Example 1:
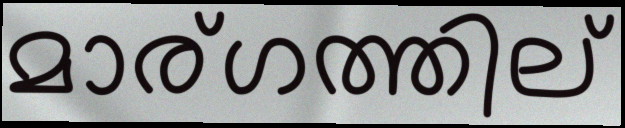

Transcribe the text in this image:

മാര്ഗത്തില്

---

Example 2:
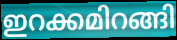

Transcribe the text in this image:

ഇറക്കമിറങ്ങി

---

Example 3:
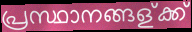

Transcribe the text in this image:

പ്രസ്ഥാനങ്ങള്ക്ക്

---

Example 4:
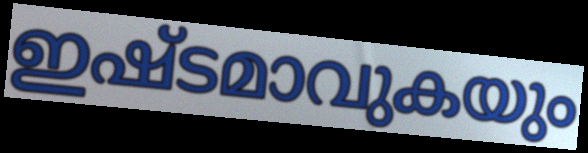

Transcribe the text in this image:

ഇഷ്ടമാവുകയും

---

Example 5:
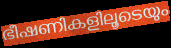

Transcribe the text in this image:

ഭീഷണികളിലൂടെയും